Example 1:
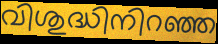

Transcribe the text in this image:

വിശുദ്ധിനിറഞ്ഞ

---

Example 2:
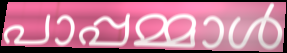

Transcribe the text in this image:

പാപ്പമ്മാൾ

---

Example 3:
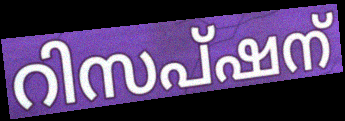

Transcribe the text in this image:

റിസപ്ഷന്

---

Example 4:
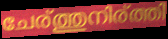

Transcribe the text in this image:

ചേര്ത്തുനിര്ത്തി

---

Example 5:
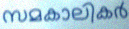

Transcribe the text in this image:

സമകാലികർ